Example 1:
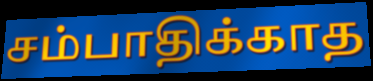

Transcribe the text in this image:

சம்பாதிக்காத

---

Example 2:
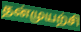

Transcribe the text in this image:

தன்முயற்சி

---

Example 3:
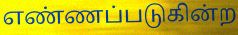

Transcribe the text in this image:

எண்ணப்படுகின்ற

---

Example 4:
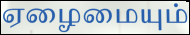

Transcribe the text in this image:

ஏழைமையும்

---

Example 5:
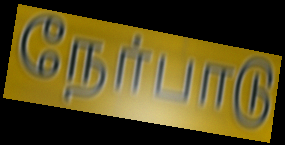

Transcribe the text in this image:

நேர்பாடு